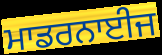
ਮਾਡਰਨਾਈਜ